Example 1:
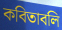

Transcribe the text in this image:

কবিতাবলি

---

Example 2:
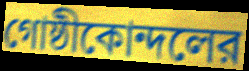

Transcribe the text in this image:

গোষ্ঠীকোন্দলের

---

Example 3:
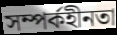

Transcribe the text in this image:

সম্পর্কহীনতা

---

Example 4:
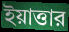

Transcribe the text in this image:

ইয়াত্তার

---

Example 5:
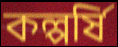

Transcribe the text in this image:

কল্পর্ষি